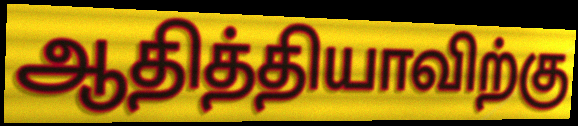
ஆதித்தியாவிற்கு